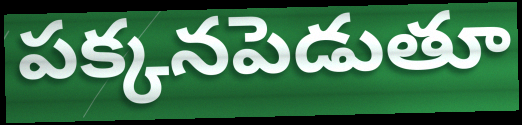
పక్కనపెడుతూ